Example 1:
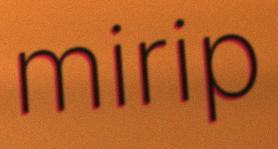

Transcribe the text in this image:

mirip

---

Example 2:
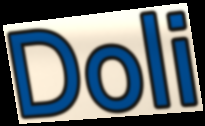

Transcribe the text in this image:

Doli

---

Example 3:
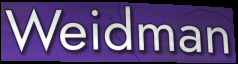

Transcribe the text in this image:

Weidman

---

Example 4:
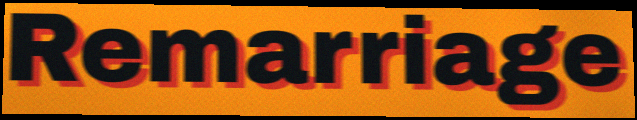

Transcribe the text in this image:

Remarriage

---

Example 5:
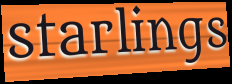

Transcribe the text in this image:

starlings